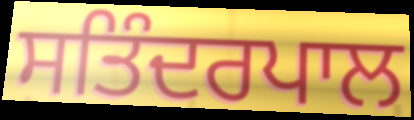
ਸਤਿੰਦਰਪਾਲ